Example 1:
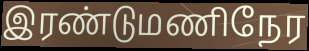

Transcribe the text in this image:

இரண்டுமணிநேர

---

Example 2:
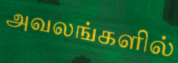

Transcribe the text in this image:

அவலங்களில்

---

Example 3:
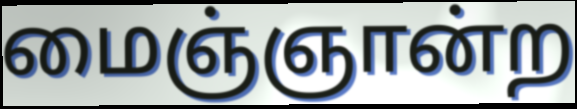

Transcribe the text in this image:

மைஞ்ஞான்ற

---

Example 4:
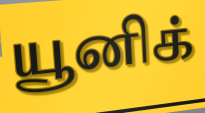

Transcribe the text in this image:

யூனிக்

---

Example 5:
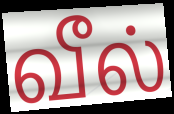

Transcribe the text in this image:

வீல்